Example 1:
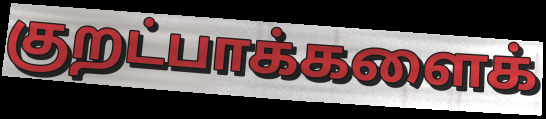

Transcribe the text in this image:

குறட்பாக்களைக்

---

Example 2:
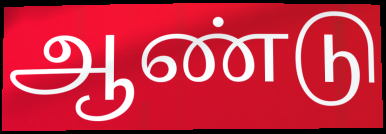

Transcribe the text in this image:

ஆண்டு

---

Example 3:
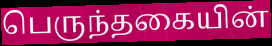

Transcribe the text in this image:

பெருந்தகையின்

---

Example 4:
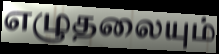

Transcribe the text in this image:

எழுதலையும்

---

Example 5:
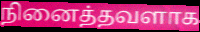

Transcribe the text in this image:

நினைத்தவளாக